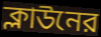
ক্লাউনের